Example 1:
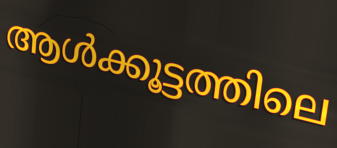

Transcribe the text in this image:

ആൾക്കൂട്ടത്തിലെ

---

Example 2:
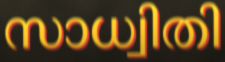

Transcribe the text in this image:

സാധ്വിതി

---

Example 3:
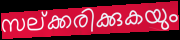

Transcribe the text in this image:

സല്ക്കരിക്കുകയും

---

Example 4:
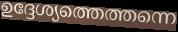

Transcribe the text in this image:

ഉദ്ദേശ്യത്തെത്തന്നെ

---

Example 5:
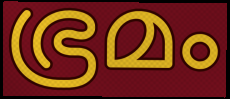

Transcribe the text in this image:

ഭ്രമം